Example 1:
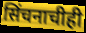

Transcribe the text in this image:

सिंचनाचीही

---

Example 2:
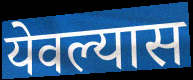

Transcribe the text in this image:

येवल्यास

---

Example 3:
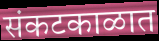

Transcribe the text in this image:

संकटकाळात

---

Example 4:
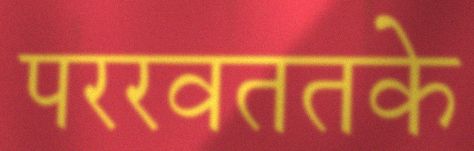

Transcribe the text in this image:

पररवततके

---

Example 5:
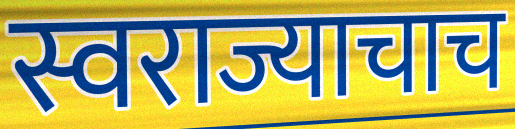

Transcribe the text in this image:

स्वराज्याचाच